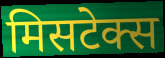
मिसटेक्स